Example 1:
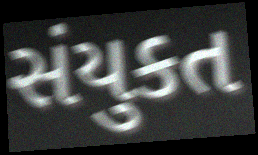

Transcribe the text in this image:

સંયુકત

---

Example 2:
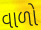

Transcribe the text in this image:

વાળો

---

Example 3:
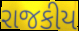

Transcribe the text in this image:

રાજકીય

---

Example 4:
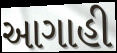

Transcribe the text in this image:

આગાહી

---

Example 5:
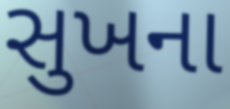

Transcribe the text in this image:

સુખના